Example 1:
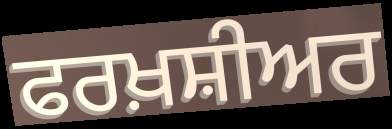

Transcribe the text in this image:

ਫਰਖ਼ਸ਼ੀਅਰ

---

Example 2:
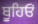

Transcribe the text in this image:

ਬੂਹਿਓਂ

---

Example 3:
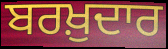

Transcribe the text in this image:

ਬਰਖ਼ੁਦਾਰ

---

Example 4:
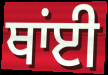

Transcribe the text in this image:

ਥਾਂਈ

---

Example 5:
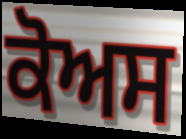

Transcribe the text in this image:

ਕੋਅਸ